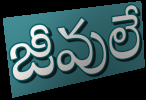
జీవులే